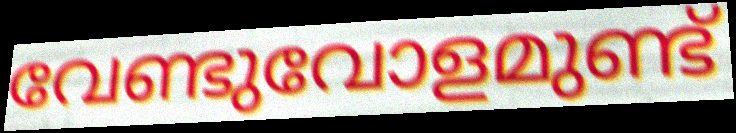
വേണ്ടുവോളമുണ്ട്